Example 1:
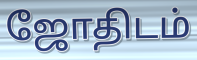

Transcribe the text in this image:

ஜோதிடம்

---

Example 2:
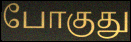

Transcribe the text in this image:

போகுது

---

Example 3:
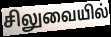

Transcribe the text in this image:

சிலுவையில்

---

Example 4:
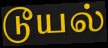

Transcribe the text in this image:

டூயல்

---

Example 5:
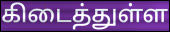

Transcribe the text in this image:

கிடைத்துள்ள